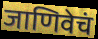
जाणिवेचं